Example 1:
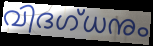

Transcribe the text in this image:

വിദഗ്ധനും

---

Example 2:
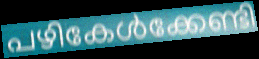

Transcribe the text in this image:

പഴികേൾക്കേണ്ടി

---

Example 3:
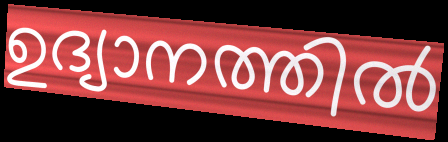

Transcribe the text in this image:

ഉദ്യാനത്തിൽ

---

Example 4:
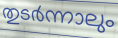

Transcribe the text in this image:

തുടർന്നാലും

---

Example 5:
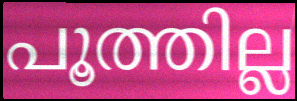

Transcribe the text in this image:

പൂത്തില്ല